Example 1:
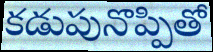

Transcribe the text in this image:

కడుపునొప్పితో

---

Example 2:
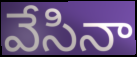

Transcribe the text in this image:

వేసినా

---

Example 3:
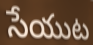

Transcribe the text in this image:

సేయుట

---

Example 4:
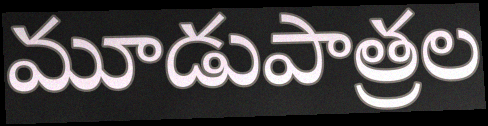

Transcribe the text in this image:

మూడుపాత్రల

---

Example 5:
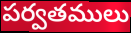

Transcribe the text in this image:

పర్వతములు